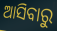
ଆସିବାରୁ